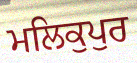
ਮਲਿਕੁਪੁਰ